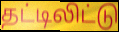
தட்டிலிட்டு